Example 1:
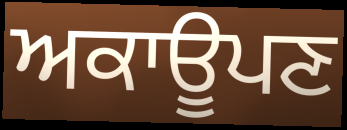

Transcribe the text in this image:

ਅਕਾਊਪਣ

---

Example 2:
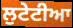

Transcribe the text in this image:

ਲੁਟੇਟੀਆ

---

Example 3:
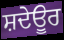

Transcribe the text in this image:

ਸ਼ਦੇਊਰ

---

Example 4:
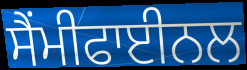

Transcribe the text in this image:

ਸੈਂਮੀਫਾਈਨਲ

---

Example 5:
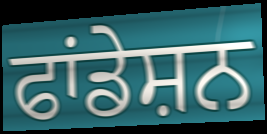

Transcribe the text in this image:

ਫਾਂਡੇਸ਼ਨ